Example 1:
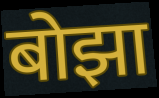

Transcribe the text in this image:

बोझा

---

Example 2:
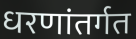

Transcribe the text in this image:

धरणांतर्गत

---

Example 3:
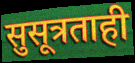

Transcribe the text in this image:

सुसूत्रताही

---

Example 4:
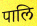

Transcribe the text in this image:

पालि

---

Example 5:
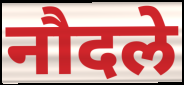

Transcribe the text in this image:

नौदले